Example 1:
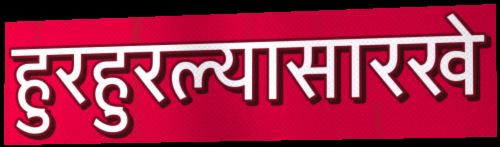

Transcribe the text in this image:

हुरहुरल्यासारखे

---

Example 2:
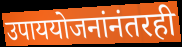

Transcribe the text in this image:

उपाययोजनांनंतरही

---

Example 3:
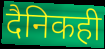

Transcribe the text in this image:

दैनिकही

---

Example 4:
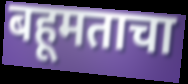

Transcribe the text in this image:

बहूमताचा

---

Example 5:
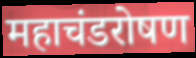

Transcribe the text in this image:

महाचंडरोषण